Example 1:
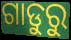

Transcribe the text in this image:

ଗାଡୁରୁ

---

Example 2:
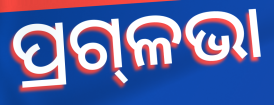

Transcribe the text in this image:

ପ୍ରଗ୍‌ଳଭା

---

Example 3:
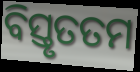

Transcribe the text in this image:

ବିସ୍ତୃତତମ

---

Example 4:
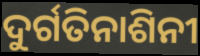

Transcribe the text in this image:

ଦୁର୍ଗତିନାଶିନୀ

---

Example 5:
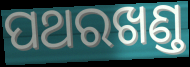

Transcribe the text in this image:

ପଥରଖଣ୍ଡ